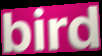
bird